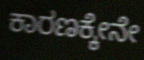
ಕಾರಣಕ್ಕೇನೇ